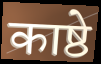
काष्ठे